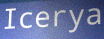
Icerya